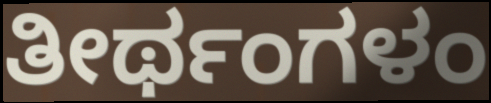
ತೀರ್ಥಂಗಳಂ